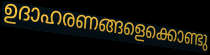
ഉദാഹരണങ്ങളെക്കൊണ്ടു